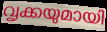
വൃക്കയുമായി